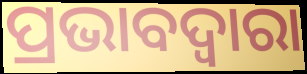
ପ୍ରଭାବଦ୍ୱାରା